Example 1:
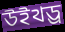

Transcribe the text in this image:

উইথড্র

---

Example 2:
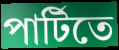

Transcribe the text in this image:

পার্টিতে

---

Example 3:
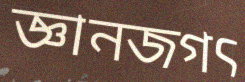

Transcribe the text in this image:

জ্ঞানজগৎ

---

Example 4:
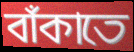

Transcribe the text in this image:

বাঁকাতে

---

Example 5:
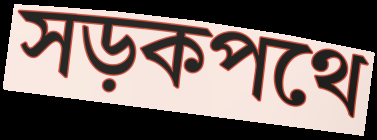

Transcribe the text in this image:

সড়কপথে